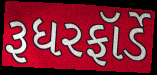
રૂધરફૉર્ડે